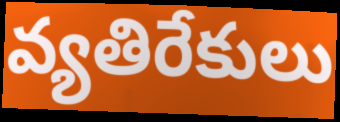
వ్యతిరేకులు